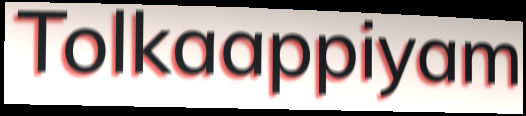
Tolkaappiyam